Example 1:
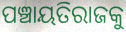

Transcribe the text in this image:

ପଞ୍ଚାୟତିରାଜକୁ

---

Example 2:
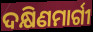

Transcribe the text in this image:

ଦକ୍ଷିଣମାର୍ଗୀ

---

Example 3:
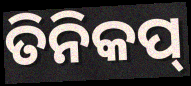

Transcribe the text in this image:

ତିନିକପ୍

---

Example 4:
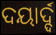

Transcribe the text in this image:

ଦୟାର୍ଦ୍ଦ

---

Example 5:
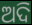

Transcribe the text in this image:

ଅଦି